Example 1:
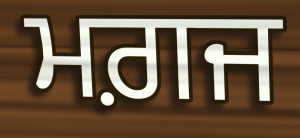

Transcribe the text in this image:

ਮਗ਼ਜ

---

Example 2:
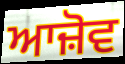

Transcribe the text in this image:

ਆਜ਼ੋਵ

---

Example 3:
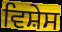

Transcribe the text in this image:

ਵਿਸ਼ੇਸ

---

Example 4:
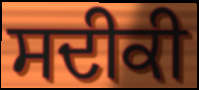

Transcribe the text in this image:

ਸਦੀਕੀ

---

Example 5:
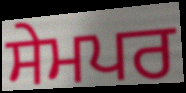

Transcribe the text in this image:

ਸੇਮਪਰ